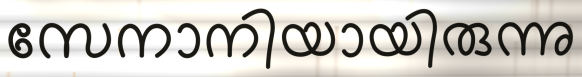
സേനാനിയായിരുന്നു